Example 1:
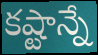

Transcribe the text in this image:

కష్టాన్నే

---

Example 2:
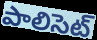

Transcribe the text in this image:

పాలిసెట్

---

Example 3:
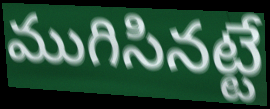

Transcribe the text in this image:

ముగిసినట్టే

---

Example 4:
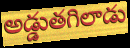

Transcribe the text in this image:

అడ్డుతగిలాడు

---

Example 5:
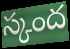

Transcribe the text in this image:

స్కంద